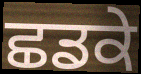
ਛਡਕੇ